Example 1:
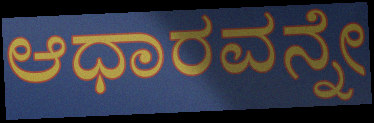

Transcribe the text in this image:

ಆಧಾರವನ್ನೇ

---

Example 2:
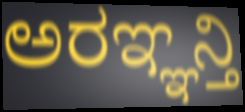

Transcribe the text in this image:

ಅರಞ್ಞನ್ತಿ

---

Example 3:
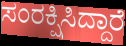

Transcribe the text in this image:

ಸಂರಕ್ಷಿಸಿದ್ದಾರೆ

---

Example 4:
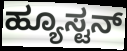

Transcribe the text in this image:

ಹ್ಯೂಸ್ಟನ್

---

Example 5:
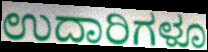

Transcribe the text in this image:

ಉದಾರಿಗಳೂ